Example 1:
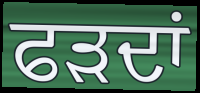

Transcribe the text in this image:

ਫੜਦਾਂ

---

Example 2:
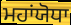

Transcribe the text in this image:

ਮਹਾਂਯੋਧਾ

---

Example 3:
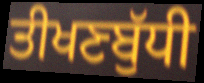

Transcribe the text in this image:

ਤੀਖਣਬੁੱਧੀ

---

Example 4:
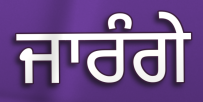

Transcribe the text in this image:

ਜਾਰੰਗੇ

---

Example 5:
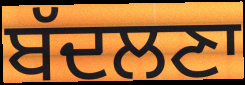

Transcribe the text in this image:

ਬੱਦਲਣਾ